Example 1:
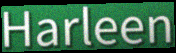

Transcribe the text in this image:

Harleen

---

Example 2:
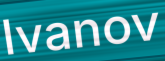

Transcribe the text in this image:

Ivanov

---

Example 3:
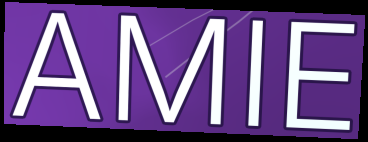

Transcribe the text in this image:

AMIE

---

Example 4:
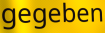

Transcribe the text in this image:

gegeben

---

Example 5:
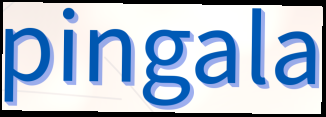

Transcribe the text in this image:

pingala